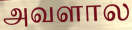
அவளால